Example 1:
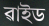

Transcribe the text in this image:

ৱাইড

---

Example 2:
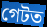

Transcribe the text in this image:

গেটত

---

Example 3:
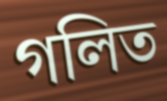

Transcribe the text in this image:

গলিত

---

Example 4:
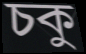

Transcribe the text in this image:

চকু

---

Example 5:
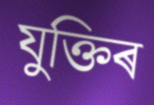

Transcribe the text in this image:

যুক্তিৰ